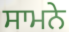
ਸਾਮਨੇ